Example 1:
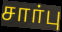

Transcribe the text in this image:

சார்பு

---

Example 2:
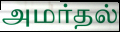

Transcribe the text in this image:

அமர்தல்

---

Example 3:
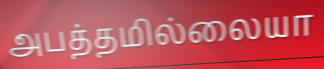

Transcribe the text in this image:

அபத்தமில்லையா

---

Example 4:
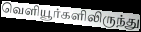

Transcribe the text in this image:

வெளியூர்களிலிருந்து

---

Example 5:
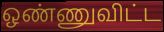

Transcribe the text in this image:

ஒண்ணுவிட்ட